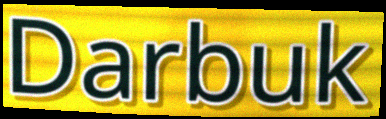
Darbuk